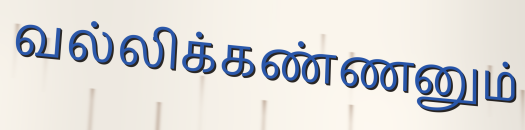
வல்லிக்கண்ணனும்